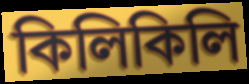
কিলিকিলি